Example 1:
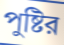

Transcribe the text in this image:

পুষ্টির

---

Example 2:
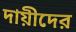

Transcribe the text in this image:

দায়ীদের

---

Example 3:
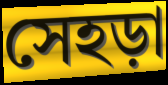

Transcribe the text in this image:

সেহড়া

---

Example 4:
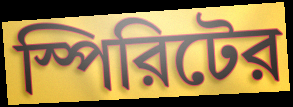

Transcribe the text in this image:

স্পিরিটের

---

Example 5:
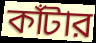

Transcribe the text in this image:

কাঁটার